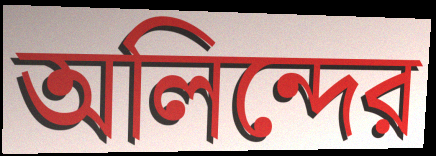
অলিন্দের